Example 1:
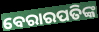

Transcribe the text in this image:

ବେରାରପତିଙ୍କ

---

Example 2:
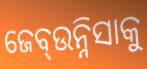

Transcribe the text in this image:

ଜେବ୍ଉନ୍ନିସାକୁ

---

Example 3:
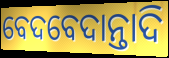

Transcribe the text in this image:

ବେଦବେଦାନ୍ତାଦି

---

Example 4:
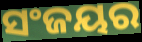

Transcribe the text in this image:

ସଂଜୟର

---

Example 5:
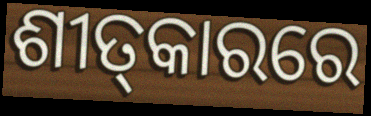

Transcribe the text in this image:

ଶୀତ୍‌କାରରେ